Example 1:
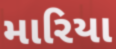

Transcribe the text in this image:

મારિયા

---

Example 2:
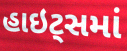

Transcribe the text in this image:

હાઇટ્સમાં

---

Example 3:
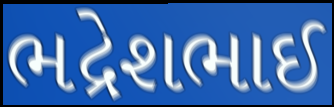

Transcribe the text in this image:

ભદ્રેશભાઈ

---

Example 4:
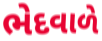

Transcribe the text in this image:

ભેદવાળે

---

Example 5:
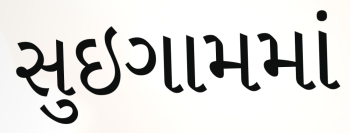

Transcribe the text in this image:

સુઇગામમાં